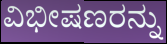
ವಿಭೀಷಣರನ್ನು